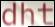
dht